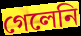
গেলেনি